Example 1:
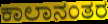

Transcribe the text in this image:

ಕಾಲಾನಂತರ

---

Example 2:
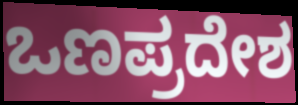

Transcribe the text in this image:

ಒಣಪ್ರದೇಶ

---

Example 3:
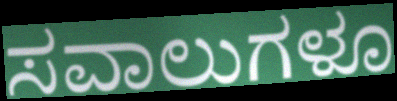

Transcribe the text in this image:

ಸವಾಲುಗಳೂ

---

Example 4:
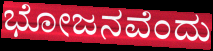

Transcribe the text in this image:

ಭೋಜನವೆಂದು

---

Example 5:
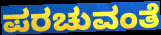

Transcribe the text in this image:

ಪರಚುವಂತೆ